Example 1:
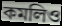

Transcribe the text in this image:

কমলিও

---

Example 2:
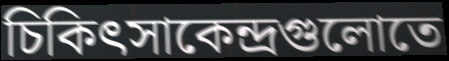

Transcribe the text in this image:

চিকিৎসাকেন্দ্রগুলোতে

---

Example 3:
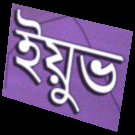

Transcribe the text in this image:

ইয়ুভ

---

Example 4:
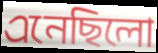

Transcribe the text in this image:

এনেছিলো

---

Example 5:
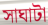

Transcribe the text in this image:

সাঘাটা